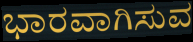
ಭಾರವಾಗಿಸುವ